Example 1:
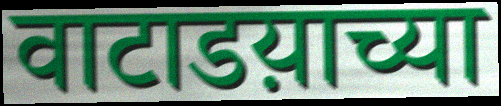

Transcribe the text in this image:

वाटाडय़ाच्या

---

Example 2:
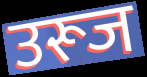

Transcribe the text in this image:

उरूज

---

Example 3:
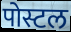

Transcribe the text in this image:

पोस्टल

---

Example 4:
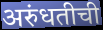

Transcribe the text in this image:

अरुंधतीची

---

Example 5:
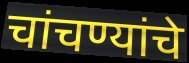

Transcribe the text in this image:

चांचण्यांचे